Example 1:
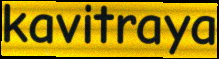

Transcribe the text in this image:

kavitraya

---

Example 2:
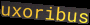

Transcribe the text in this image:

uxoribus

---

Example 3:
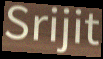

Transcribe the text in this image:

Srijit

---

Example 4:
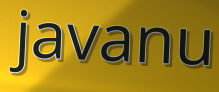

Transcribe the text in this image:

javanu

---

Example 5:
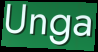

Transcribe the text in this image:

Unga